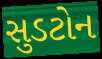
સુડટોન